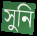
সুনি